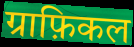
ग्राफ़िकल